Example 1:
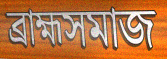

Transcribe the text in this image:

ব্রাহ্মসমাজ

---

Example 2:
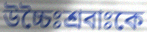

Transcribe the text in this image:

উচ্চৈঃশ্রবাঃকে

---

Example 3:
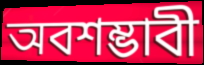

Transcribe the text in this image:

অবশম্ভাবী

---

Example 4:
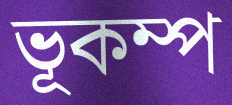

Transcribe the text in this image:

ভূকম্প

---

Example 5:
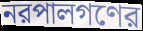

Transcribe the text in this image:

নরপালগণের